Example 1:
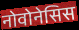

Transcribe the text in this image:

नोवोनेसिस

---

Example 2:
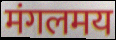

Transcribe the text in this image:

मंगलमय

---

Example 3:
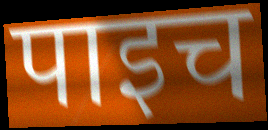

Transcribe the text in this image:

पाइच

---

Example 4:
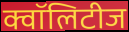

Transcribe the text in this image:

क्वॉलिटीज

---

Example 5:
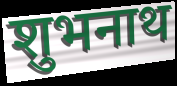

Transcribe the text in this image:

शुभनाथ